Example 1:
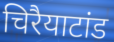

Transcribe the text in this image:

चिरैयाटांड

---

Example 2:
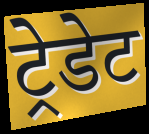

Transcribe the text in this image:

ट्रेडेट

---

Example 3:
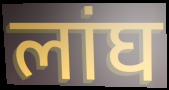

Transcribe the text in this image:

लांघ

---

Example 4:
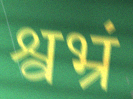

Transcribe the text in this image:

श्वभ्रं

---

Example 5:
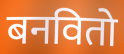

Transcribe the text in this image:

बनवितो